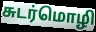
சுடர்மொழி